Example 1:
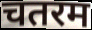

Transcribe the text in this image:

चतरम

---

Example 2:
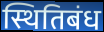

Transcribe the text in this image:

स्थितिबंध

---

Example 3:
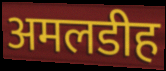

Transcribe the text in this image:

अमलडीह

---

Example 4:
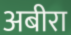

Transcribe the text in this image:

अबीरा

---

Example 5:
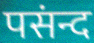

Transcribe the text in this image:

पसंन्द